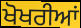
ਖੋਖਰੀਆਂ